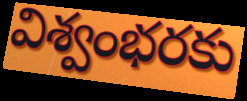
విశ్వంభరకు